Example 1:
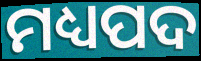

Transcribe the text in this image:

ମଧ୍ୟପଦ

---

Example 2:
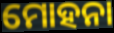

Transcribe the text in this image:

ମୋହନା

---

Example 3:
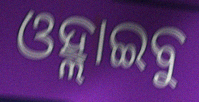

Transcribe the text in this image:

ଓହ୍ଲାଇବୁ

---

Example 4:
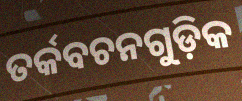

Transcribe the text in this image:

ତର୍କବଚନଗୁଡ଼ିକ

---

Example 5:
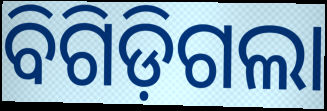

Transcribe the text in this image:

ବିଗିଡ଼ିଗଲା